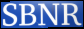
SBNR